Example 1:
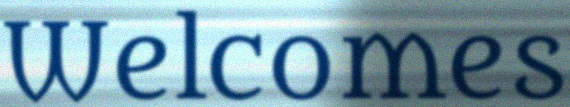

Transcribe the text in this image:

Welcomes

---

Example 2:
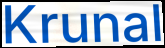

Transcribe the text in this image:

Krunal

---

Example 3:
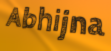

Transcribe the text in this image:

Abhijna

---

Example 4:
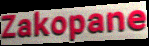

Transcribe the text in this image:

Zakopane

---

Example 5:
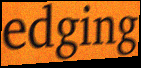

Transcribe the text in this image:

edging